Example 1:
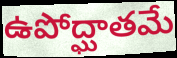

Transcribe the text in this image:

ఉపోద్ఘాతమే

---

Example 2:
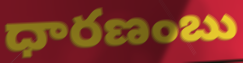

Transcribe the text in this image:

ధారణంబు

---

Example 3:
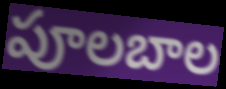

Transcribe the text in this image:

పూలబాల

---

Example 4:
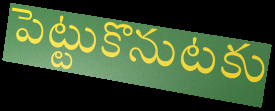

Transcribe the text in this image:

పెట్టుకొనుటకు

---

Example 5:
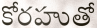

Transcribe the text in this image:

కోరహుతో